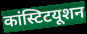
कांस्टिटयूशन